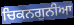
ਚਿਕਨਗੁਨੀਆ